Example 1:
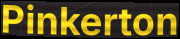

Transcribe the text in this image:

Pinkerton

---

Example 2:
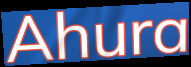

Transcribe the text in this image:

Ahura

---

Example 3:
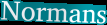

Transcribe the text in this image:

Normans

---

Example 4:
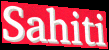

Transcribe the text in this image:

Sahiti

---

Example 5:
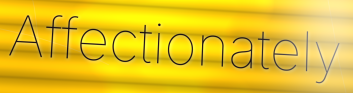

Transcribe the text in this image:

Affectionately